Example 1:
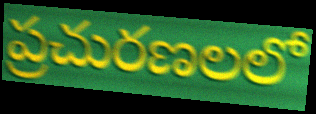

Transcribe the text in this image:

ప్రచురణలలో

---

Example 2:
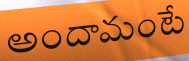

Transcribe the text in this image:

అందామంటే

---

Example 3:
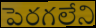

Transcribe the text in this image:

పెరగలేని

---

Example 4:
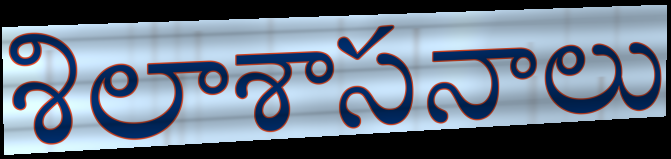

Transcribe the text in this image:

శిలాశాసనాలు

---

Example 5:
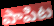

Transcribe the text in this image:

పాపిట